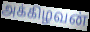
அக்கிழவன்